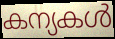
കന്യകൾ